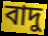
বাদু